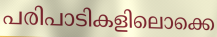
പരിപാടികളിലൊക്കെ